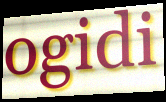
ogidi